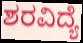
ಶರವಿದ್ಯೆ